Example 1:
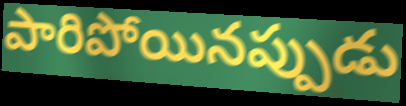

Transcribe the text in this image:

పారిపోయినప్పుడు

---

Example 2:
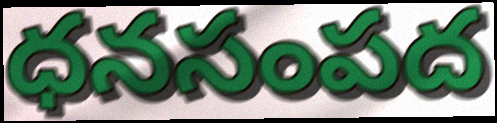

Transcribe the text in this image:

ధనసంపద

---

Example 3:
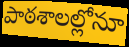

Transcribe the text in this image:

పాఠశాలల్లోనూ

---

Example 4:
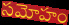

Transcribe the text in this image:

సమోహం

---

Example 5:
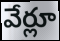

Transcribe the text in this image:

వేర్లూ